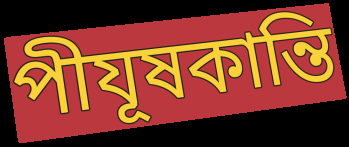
পীযূষকান্তি